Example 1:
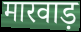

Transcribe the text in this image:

मारवाड़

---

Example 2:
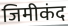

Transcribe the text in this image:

जिमीकंद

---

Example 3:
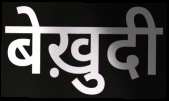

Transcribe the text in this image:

बेख़ुदी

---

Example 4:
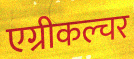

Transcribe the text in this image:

एग्रीकल्चर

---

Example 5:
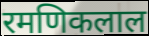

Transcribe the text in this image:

रमणिकलाल